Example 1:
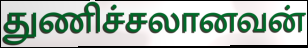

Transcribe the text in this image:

துணிச்சலானவன்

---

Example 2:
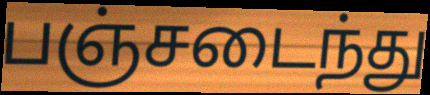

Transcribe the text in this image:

பஞ்சடைந்து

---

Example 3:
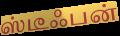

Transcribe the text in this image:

ஸ்டீஃபன்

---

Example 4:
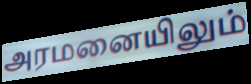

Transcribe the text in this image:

அரமனையிலும்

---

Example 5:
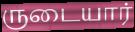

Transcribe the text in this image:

ருடையார்